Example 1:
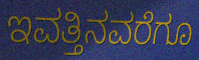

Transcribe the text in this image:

ಇವತ್ತಿನವರೆಗೂ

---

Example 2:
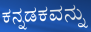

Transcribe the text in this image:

ಕನ್ನಡಕವನ್ನು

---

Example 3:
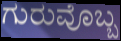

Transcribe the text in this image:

ಗುರುವೊಬ್ಬ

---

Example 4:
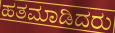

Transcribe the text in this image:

ಹತಮಾಡಿದರು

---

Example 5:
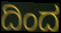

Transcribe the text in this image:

ದಿಂದ